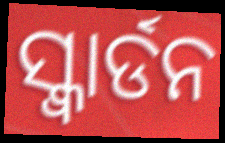
ସ୍କ୍ବାର୍ଡନ